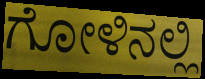
ಗೋಳಿನಲ್ಲಿ